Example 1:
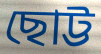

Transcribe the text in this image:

ছোট্ট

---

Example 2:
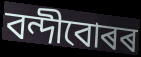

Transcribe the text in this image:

বন্দীবোৰৰ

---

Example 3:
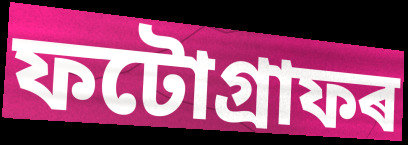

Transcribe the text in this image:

ফটোগ্ৰাফৰ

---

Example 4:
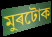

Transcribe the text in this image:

মুৰটোক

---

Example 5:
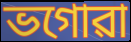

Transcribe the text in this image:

ভগোৱা